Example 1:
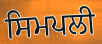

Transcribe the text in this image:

ਸਿਮਪਲੀ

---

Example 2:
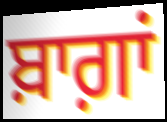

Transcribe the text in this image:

ਬ਼ਾਗ਼ਾਂ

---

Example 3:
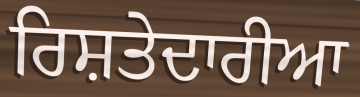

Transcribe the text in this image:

ਰਿਸ਼ਤੇਦਾਰੀਆ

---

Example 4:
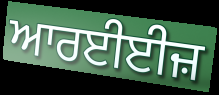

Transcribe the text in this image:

ਆਰਈਈਜ਼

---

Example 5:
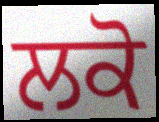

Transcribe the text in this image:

ਲਕੋ